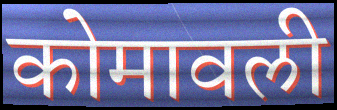
कोमावली